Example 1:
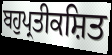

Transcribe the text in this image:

ਬਹੁਪ੍ਰਤੀਕਸ਼ਿਤ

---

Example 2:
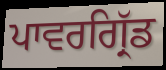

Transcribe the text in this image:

ਪਾਵਰਗ੍ਰਿੱਡ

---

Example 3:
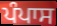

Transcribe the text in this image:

ਪੰਪਾਸ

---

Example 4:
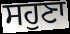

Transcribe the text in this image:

ਸਹੁਣਾ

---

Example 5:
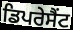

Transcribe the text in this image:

ਡਿਪਰੇਸੈਂਟ